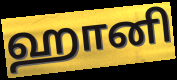
ஹானி